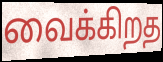
வைக்கிறத